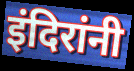
इंदिरांनी